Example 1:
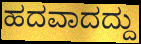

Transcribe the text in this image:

ಹದವಾದದ್ದು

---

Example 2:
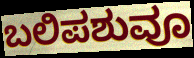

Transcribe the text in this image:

ಬಲಿಪಶುವೂ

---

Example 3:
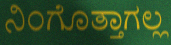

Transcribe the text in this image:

ನಿಂಗೊತ್ತಾಗಲ್ಲ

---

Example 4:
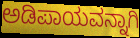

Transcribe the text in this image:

ಅಡಿಪಾಯವನ್ನಾಗಿ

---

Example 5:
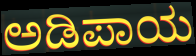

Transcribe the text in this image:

ಅಡಿಪಾಯ